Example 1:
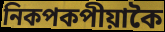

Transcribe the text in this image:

নিকপকপীয়াকৈ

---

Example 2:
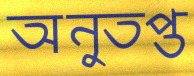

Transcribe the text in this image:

অনুতপ্ত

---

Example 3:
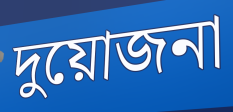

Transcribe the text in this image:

দুয়োজনা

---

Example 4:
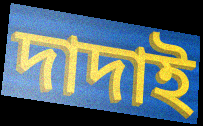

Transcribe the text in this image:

দাদাই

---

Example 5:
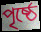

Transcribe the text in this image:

পৃষ্ঠে